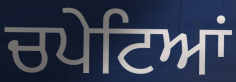
ਚਪੇਟਿਆਂ